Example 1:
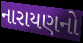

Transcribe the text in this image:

નારાયણનો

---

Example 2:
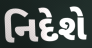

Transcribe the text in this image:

નિદેશે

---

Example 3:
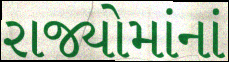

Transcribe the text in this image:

રાજ્યોમાંનાં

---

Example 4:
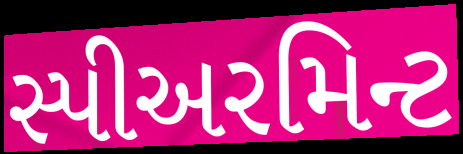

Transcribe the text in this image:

સ્પીઅરમિન્ટ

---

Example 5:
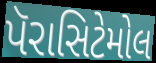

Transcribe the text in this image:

પૅરાસિટેમોલ